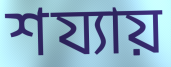
শয্যায়